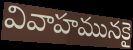
వివాహమునకై